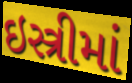
ઇસ્ત્રીમાં